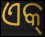
ଏକ୍